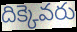
దిక్కెవరు